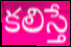
కలిస్తే